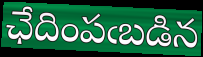
ఛేదింపఁబడిన